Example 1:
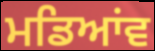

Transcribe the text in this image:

ਮਡਿਆਂਵ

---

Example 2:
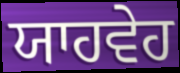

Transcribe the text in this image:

ਯਾਹਵੇਹ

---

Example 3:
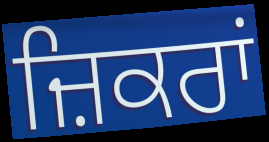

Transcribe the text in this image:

ਜ਼ਿਕਰਾਂ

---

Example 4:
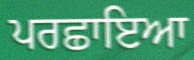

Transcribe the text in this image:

ਪਰਛਾਇਆ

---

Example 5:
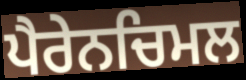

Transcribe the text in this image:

ਪੈਰੇਨਚਿਮਲ